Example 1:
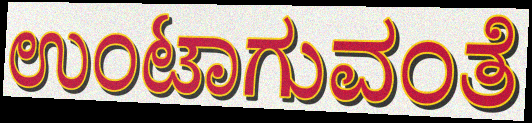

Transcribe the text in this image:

ಉಂಟಾಗುವಂತೆ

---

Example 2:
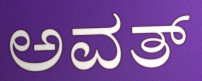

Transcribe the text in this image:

ಅವತ್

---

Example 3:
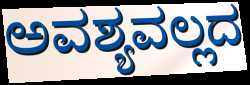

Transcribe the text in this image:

ಅವಶ್ಯವಲ್ಲದ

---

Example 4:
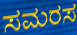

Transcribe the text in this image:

ಸಮರಸ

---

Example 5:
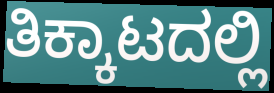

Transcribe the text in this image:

ತಿಕ್ಕಾಟದಲ್ಲಿ